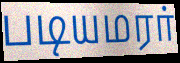
படியமரர்